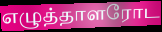
எழுத்தாளரோட